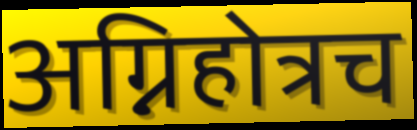
अग्निहोत्रच